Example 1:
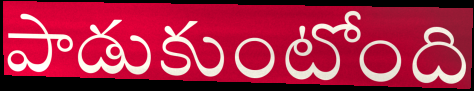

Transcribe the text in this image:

పాడుకుంటోంది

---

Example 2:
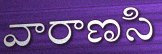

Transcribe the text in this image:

వారాణసి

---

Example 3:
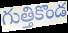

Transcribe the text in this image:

గుత్తికొండ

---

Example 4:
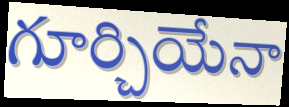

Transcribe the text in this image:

గూర్చియేనా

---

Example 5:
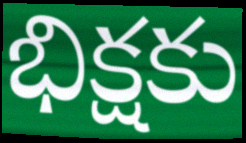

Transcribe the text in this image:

భిక్షకు